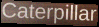
Caterpillar